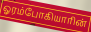
ஓரம்போகியாரின்